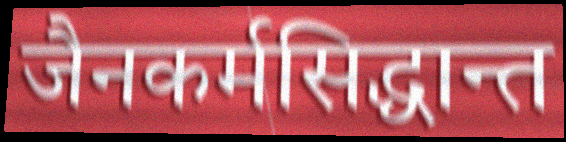
जैनकर्मसिद्धान्त